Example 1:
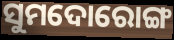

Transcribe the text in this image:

ସୁମଦୋରୋଙ୍ଗ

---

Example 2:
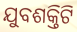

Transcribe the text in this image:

ଯୁବଶକ୍ତିଟି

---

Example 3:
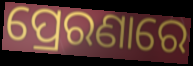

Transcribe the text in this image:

ପ୍ରେରଣାରେ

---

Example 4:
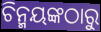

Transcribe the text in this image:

ଚିନ୍ମୟଙ୍କଠାରୁ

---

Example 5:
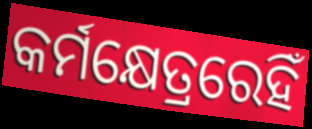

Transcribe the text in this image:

କର୍ମକ୍ଷେତ୍ରରେହିଁ